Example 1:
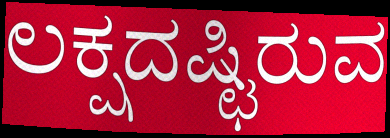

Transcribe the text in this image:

ಲಕ್ಷದಷ್ಟಿರುವ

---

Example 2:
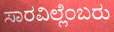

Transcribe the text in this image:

ಸಾರವಿಲ್ಲೆಂಬರು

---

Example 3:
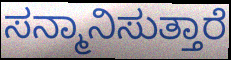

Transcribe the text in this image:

ಸನ್ಮಾನಿಸುತ್ತಾರೆ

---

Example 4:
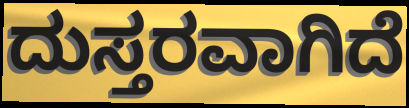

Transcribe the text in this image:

ದುಸ್ತರವಾಗಿದೆ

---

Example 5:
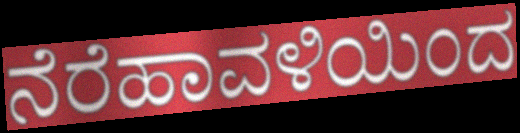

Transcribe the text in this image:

ನೆರೆಹಾವಳಿಯಿಂದ